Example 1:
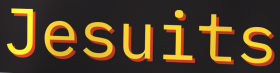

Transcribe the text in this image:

Jesuits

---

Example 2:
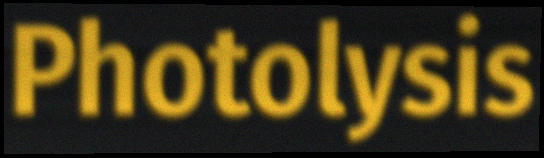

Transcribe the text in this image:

Photolysis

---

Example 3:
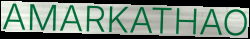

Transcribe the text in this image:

AMARKATHAO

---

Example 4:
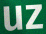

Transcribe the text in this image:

uz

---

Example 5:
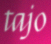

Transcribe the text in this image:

tajo